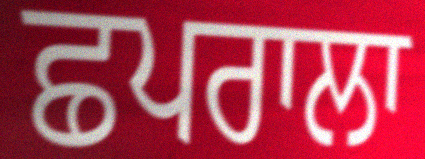
ਛਪਰਾਲਾ